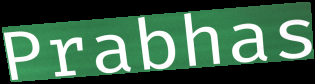
Prabhas